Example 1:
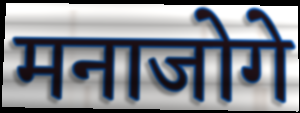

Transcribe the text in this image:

मनाजोगे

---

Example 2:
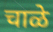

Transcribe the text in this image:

चाळे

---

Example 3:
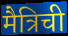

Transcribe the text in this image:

मैत्रिची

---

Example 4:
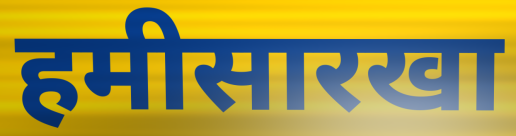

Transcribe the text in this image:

हमीसारखा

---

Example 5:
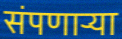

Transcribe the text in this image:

संपणार्‍या